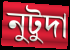
নুটুদা